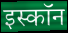
इस्कॉन